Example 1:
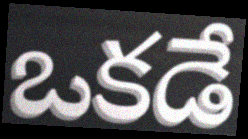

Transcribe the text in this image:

ఒకడే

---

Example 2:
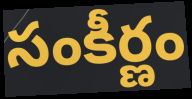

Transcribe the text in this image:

సంకీర్ణం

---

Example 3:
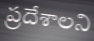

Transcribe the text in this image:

ప్రదేశాలని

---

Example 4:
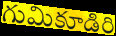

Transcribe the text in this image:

గుమికూడిరి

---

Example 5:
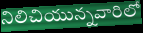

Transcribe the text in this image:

నిలిచియున్నవారిలో